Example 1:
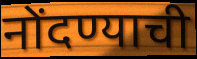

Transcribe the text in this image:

नोंदण्याची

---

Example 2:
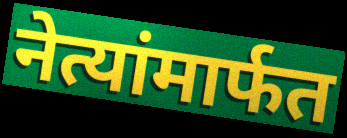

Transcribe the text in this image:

नेत्यांमार्फत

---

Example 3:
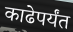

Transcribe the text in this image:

काढेपर्यंत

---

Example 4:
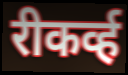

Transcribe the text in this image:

रीकर्व्ह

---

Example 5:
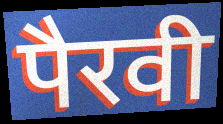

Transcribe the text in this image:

पैरवी